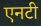
एनटी